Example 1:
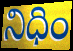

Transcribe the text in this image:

నిధిం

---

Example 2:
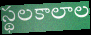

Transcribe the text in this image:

స్థలకాలాల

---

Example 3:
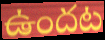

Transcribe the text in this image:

ఉందట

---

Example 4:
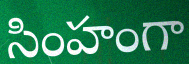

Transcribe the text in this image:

సింహంగా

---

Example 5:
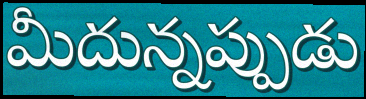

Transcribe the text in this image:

మీదున్నప్పుడు